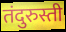
तंदुरुस्ती